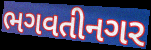
ભગવતીનગર